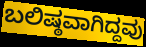
ಬಲಿಷ್ಠವಾಗಿದ್ದವು